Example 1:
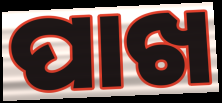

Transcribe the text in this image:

ପାଖ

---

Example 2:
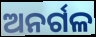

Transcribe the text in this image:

ଅନର୍ଗଳ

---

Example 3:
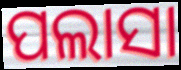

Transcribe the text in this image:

ପଲାସା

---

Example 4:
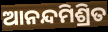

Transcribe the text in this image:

ଆନନ୍ଦମିଶ୍ରିତ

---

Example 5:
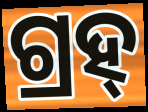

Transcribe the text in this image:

ଗ୍ରହ୍